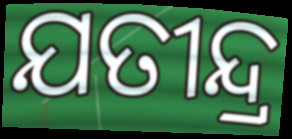
ଯତୀନ୍ଦ୍ର